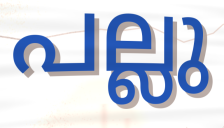
പല്ലു